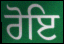
ਰੋਇ